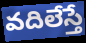
వదిలేస్తే